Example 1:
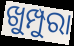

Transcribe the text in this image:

ଖୁମ୍ପୁରା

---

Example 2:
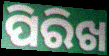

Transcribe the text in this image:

ପିରିଖ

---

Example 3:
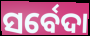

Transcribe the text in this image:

ସର୍ବେଦା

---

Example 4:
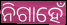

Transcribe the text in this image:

ନିଗାହେଁ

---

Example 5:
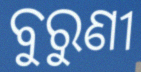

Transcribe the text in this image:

ବୁରୁଣୀ